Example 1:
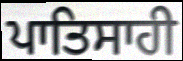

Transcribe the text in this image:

ਪਾਤਿਸਾਹੀ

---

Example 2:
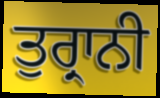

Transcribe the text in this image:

ਤੁਰ੍ਰਾਨੀ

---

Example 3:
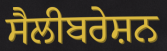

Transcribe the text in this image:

ਸੈਲੀਬਰੇਸ਼ਨ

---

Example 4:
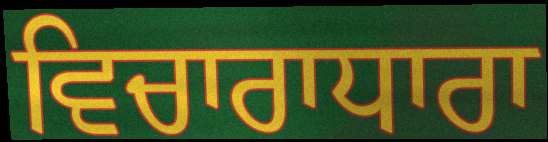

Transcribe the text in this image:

ਵਿਚਾਰਾਧਾਰਾ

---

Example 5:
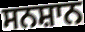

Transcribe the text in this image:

ਸਨਸ਼ਾਨ